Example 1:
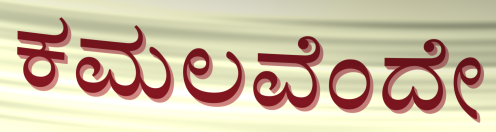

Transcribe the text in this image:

ಕಮಲವೆಂದೇ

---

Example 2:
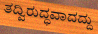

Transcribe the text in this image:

ತದ್ವಿರುದ್ಧವಾದದ್ದು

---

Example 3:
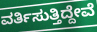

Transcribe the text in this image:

ವರ್ತಿಸುತ್ತಿದ್ದೇವೆ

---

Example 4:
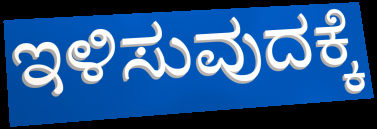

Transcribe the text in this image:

ಇಳಿಸುವುದಕ್ಕೆ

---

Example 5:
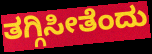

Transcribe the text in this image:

ತಗ್ಗಿಸೀತೆಂದು